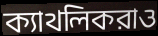
ক্যাথলিকরাও